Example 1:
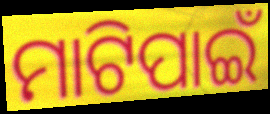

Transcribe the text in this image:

ମାଟିପାଇଁ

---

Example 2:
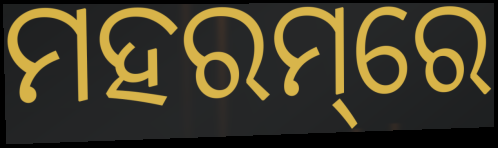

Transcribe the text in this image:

ମହରମ୍‌ରେ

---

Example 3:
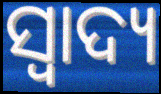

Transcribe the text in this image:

ସ୍ଵାଦ୍ୟ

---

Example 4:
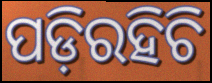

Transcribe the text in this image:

ପଡ଼ିରହିଚି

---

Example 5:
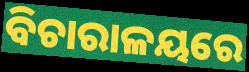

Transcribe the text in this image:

ବିଚାରାଳୟରେ